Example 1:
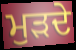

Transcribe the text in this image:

ਮੁਡ਼ਦੇ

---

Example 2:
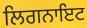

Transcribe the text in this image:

ਲਿਗਨਾਇਟ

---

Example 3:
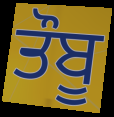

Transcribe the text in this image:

ਤੌਬੂ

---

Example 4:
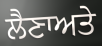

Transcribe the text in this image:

ਲੈਣਾਅਤੇ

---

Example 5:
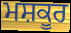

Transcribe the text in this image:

ਮਸ਼ਕੂਰ